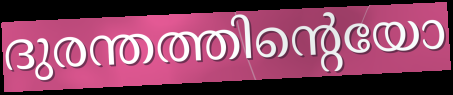
ദുരന്തത്തിന്റെയോ